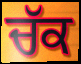
ਚੱਕ